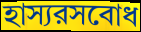
হাস্যরসবোধ